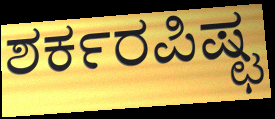
ಶರ್ಕರಪಿಷ್ಟ